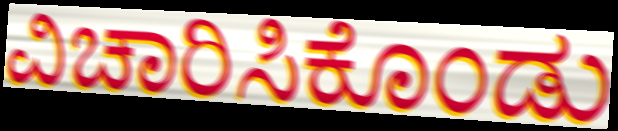
ವಿಚಾರಿಸಿಕೊಂಡು